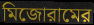
মিজোরামের